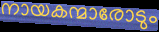
നായകന്മാരോടും